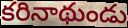
కరినాథుండు